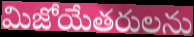
మిజోయేతరులను